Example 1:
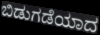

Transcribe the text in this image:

ಬಿಡುಗಡೆಯಾದ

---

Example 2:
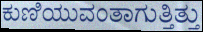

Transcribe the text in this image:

ಕುಣಿಯುವಂತಾಗುತ್ತಿತ್ತು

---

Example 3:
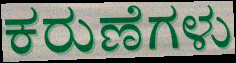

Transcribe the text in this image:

ಕರುಣೆಗಳು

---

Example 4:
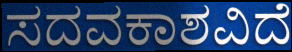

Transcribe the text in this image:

ಸದವಕಾಶವಿದೆ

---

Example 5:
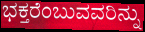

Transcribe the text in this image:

ಭಕ್ತರೆಂಬುವವರಿನ್ನು